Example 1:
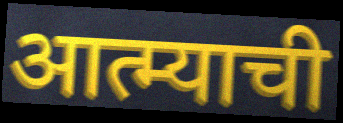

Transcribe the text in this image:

आत्म्याची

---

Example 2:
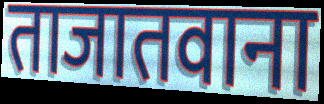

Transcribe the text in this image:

ताजातवाना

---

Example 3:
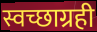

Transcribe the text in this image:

स्वच्छाग्रही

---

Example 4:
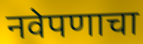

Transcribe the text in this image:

नवेपणाचा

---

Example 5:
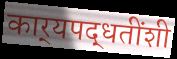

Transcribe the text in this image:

कार्यपद्धतींशी